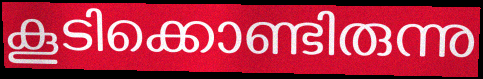
കൂടിക്കൊണ്ടിരുന്നു